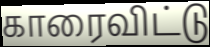
காரைவிட்டு